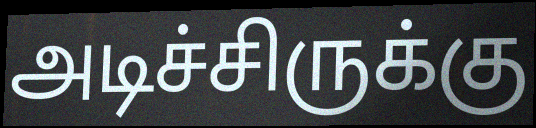
அடிச்சிருக்கு